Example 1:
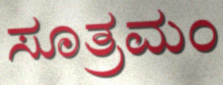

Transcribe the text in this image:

ಸೂತ್ರಮಂ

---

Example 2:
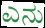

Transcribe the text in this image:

ಎನು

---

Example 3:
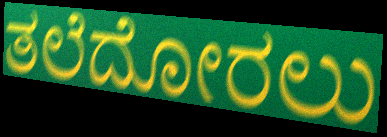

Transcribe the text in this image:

ತಲೆದೋರಲು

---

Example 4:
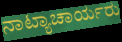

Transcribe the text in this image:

ನಾಟ್ಯಾಚಾರ್ಯರು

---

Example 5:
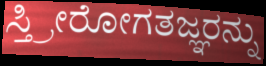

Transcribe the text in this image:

ಸ್ತ್ರೀರೋಗತಜ್ಞರನ್ನು